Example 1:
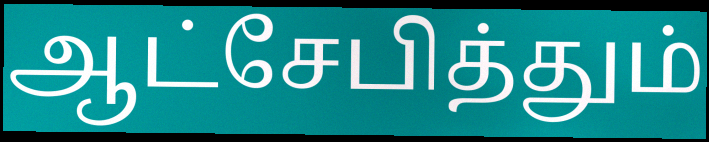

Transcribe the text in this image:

ஆட்சேபித்தும்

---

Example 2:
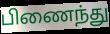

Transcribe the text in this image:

பிணைந்து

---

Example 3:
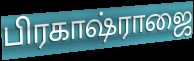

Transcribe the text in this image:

பிரகாஷ்ராஜை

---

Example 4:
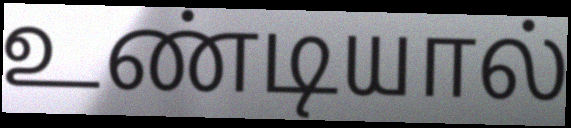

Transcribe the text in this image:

உண்டியால்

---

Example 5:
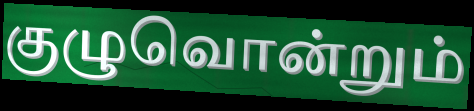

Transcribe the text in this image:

குழுவொன்றும்